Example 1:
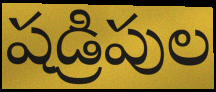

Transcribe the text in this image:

షడ్రిపుల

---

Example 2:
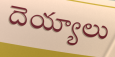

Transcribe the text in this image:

దెయ్యాలు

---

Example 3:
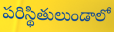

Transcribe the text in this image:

పరిస్థితులుండాలో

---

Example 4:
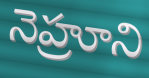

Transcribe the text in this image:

నెహ్రూని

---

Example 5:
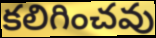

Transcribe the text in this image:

కలిగించవు